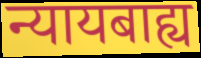
न्यायबाह्य